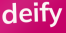
deify